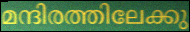
മന്ദിരത്തിലേക്കു